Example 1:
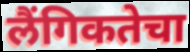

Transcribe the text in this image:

लैंगिकतेचा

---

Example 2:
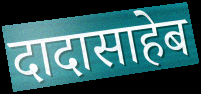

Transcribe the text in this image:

दादासाहेब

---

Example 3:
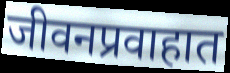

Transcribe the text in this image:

जीवनप्रवाहात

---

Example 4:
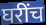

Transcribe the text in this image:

घरींच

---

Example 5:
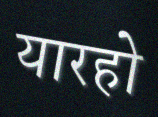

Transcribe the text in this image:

यारहो